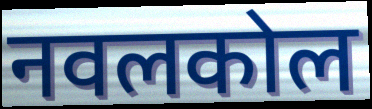
नवलकोल